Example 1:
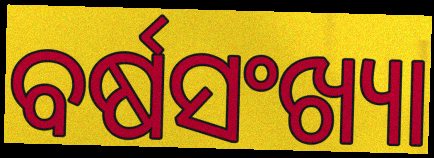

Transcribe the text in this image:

ବର୍ଷସଂଖ୍ୟା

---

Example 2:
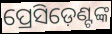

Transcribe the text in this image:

ପ୍ରେସିଡ଼େଣ୍ଟଙ୍କ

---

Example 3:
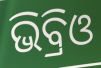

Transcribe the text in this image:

ଭିବ୍ରିଓ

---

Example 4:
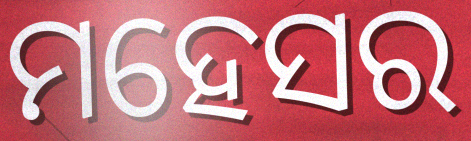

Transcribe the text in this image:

ମହେସର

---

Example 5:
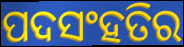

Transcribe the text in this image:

ପଦସଂହତିର